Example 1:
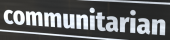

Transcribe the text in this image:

communitarian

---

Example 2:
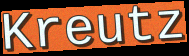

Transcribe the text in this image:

Kreutz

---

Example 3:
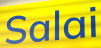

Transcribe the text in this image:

Salai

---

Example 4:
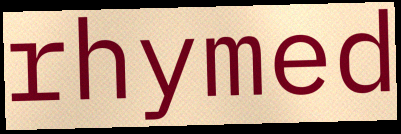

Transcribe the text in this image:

rhymed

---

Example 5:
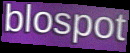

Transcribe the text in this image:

blospot